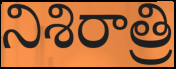
నిశిరాత్రి